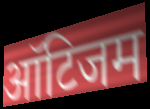
ऑटिजम